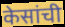
केसांची